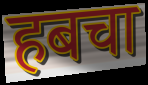
हबचा